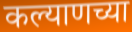
कल्याणच्या